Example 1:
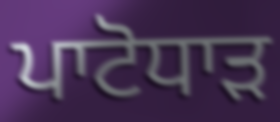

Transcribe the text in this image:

ਪਾਟੋਧਾੜ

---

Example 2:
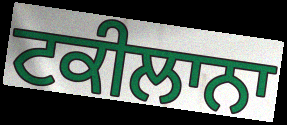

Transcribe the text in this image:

ਟਕੀਲਾਨਾ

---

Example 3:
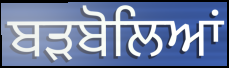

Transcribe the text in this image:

ਬੜਬੋਲਿਆਂ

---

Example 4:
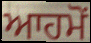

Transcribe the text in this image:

ਆਹਮੋਂ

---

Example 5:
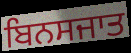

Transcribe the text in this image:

ਬਿਨਸਜਾਤ